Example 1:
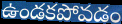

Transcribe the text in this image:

ఉండకపోవడం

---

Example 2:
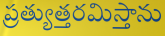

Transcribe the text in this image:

ప్రత్యుత్తరమిస్తాను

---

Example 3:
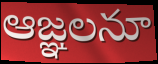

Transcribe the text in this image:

ఆజ్ఞలనూ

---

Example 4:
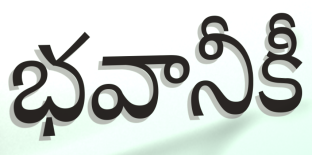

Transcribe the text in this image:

భవానీకీ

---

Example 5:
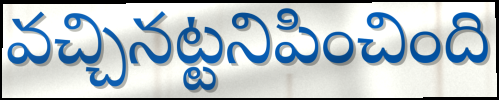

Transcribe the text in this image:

వచ్చినట్టనిపించింది